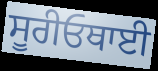
ਸੂਰੀਓਥਾਈ